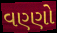
વણ્ણો